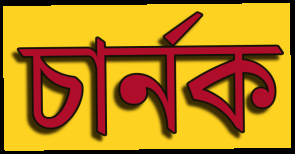
চার্নক